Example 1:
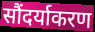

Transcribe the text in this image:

सौंदर्याकरण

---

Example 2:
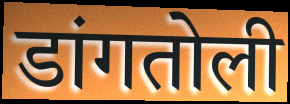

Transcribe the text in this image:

डांगतोली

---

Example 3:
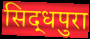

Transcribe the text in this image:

सिद्धपुरा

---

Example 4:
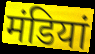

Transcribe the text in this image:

मंडियां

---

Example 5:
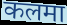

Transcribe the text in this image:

कलमा